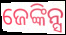
ଜେଙ୍କିନ୍ସ